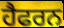
ਹੈਫਰਨ